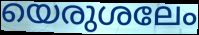
യെരുശലേം